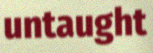
untaught